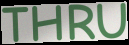
THRU